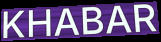
KHABAR